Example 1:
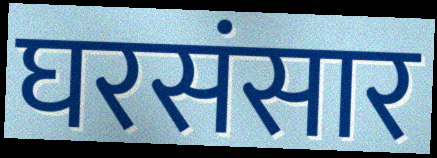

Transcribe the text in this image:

घरसंसार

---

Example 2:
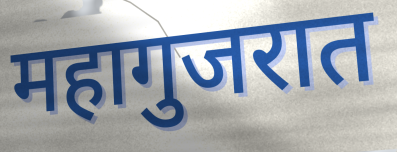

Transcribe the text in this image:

महागुजरात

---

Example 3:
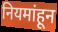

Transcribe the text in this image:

नियमांहून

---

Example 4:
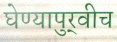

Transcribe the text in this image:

घेण्यापुर्वीच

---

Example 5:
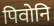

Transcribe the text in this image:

पिवोनि